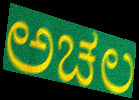
ಅಚಲ